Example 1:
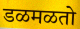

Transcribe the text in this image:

डळमळतो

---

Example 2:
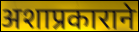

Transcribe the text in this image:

अशाप्रकाराने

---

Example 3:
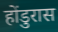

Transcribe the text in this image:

होंडुरास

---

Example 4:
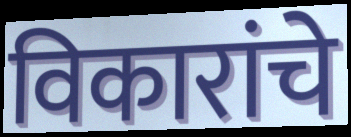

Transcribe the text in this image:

विकारांचे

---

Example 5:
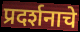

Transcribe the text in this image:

प्रदर्शनाचे